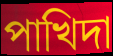
পাখিদা